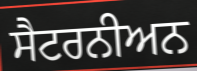
ਸੈਟਰਨੀਅਨ